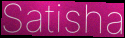
Satisha